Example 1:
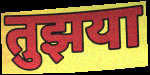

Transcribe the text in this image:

तुझया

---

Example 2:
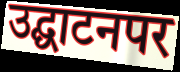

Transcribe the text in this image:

उद्घाटनपर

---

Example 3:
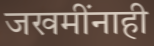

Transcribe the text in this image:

जखमींनाही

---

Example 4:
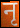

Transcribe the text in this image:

नृ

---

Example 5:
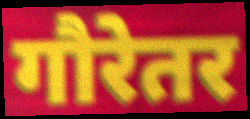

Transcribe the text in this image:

गौरेतर